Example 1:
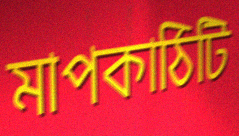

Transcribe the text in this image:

মাপকাঠিটি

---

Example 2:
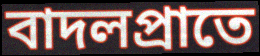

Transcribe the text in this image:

বাদলপ্রাতে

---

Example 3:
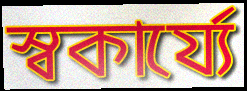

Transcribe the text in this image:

স্বকার্য্যে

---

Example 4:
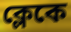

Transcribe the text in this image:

ক্লেকে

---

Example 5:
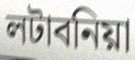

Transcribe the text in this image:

লটাবনিয়া